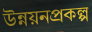
উন্নয়নপ্রকল্প